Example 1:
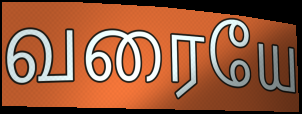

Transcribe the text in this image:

வரையே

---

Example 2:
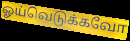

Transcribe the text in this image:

ஓய்வெடுக்கவோ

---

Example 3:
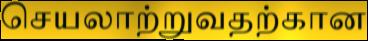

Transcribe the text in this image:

செயலாற்றுவதற்கான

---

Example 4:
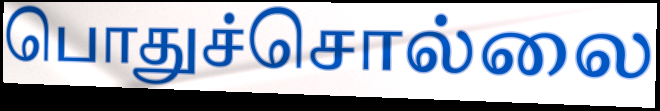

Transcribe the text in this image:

பொதுச்சொல்லை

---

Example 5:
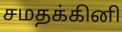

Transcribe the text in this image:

சமதக்கினி